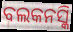
ବଲକନସ୍କି